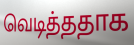
வெடித்ததாக